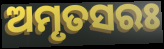
ଅମୃତସରଃ